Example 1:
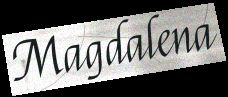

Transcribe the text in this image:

Magdalena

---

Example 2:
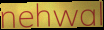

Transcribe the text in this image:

nehwal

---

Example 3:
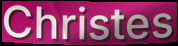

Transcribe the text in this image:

Christes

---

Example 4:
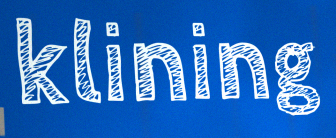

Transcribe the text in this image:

klining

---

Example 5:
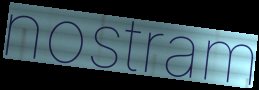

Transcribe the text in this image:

nostram